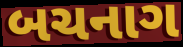
બચનાગ